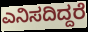
ಎನಿಸದಿದ್ದರೆ